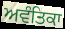
ਅਵੰਤਿਕਾ